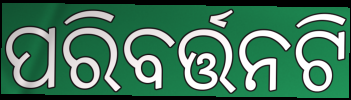
ପରିବର୍ତ୍ତନଟି